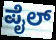
ಪೈಲ್